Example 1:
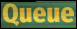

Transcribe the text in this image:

Queue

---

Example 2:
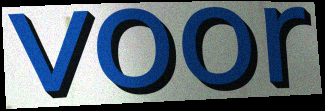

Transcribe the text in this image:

voor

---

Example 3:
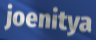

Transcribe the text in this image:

joenitya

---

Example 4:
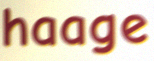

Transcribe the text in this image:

haage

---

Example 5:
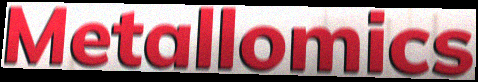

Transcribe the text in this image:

Metallomics